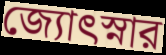
জ্যোৎস্নার